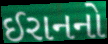
ઈરાનનો